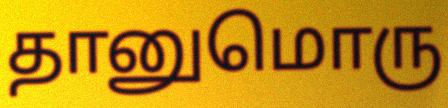
தானுமொரு